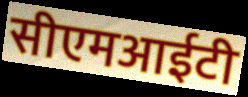
सीएमआईटी